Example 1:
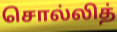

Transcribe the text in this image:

சொல்லித்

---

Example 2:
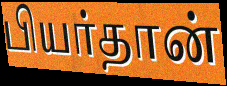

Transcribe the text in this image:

பியர்தான்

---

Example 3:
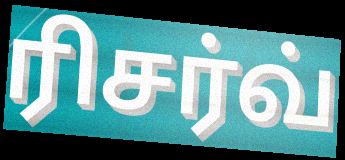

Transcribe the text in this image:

ரிசர்வ்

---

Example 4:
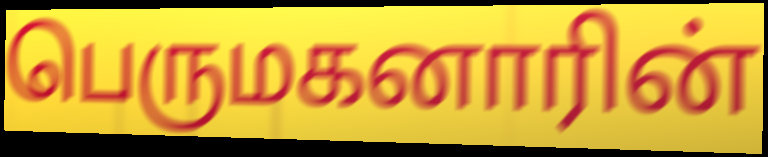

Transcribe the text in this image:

பெருமகனாரின்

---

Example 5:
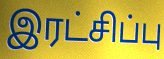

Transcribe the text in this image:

இரட்சிப்பு